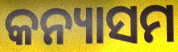
କନ୍ୟାସମ